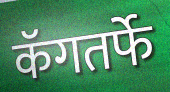
कॅगतर्फे